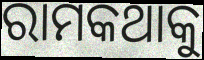
ରାମକଥାକୁ